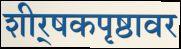
शीर्षकपृष्ठावर